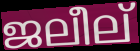
ജലീല്